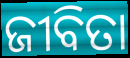
ଜୀବିତା